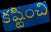
కష్టించి